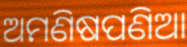
ଅମଣିଷପଣିଆ